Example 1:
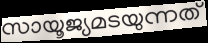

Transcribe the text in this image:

സായൂജ്യമടയുന്നത്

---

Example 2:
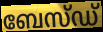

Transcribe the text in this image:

ബേസ്ഡ്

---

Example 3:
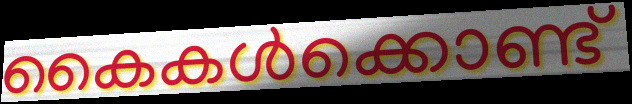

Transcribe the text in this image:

കൈകൾക്കൊണ്ട്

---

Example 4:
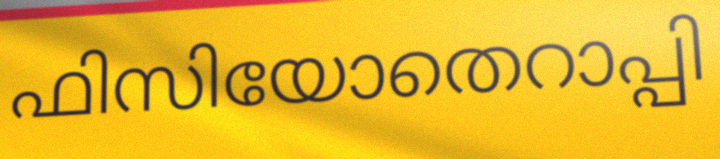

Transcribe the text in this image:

ഫിസിയോതെറാപ്പി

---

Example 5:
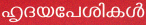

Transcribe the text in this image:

ഹൃദയപേശികൾ